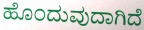
ಹೊಂದುವುದಾಗಿದೆ